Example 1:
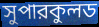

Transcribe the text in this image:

সুপারকুলড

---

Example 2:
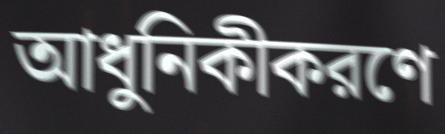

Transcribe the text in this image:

আধুনিকীকরণে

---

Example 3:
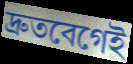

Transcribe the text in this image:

দ্রুতবেগেই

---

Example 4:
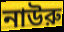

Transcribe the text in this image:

নাউরু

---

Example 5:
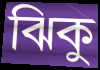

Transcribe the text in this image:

ঝিকু